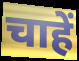
चाहें